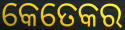
କେତେକର